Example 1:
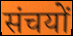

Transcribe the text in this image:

संचयों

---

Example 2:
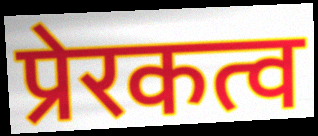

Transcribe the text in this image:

प्रेरकत्व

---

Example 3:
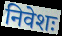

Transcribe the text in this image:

निवेशः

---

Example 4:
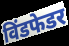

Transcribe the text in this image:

विंडफेडर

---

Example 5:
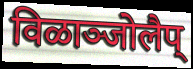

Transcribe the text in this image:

विळाञ्जोलैप्